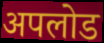
अपलोड